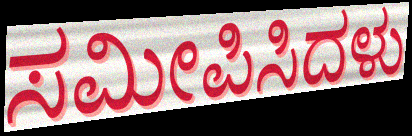
ಸಮೀಪಿಸಿದಳು